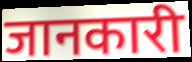
जानकारी